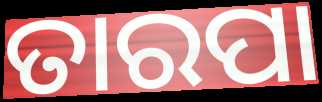
ତାରପା